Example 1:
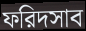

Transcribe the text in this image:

ফরিদসাব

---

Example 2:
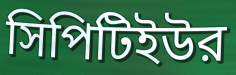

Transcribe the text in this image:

সিপিটিইউর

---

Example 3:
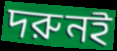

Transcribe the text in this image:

দরুনই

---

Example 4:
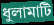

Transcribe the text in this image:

ধুলামাটি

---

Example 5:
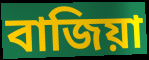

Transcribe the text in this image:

বাজিয়া